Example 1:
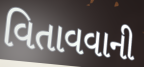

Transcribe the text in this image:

વિતાવવાની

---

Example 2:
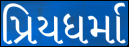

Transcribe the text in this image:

પ્રિયધર્મા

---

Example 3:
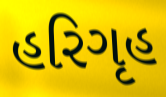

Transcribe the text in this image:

હરિગૃહ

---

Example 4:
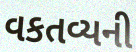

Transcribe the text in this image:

વકતવ્યની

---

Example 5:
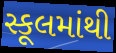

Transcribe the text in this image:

સ્કૂલમાંથી